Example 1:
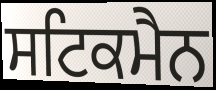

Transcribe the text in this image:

ਸਟਿਕਮੈਨ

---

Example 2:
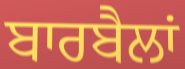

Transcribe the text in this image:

ਬਾਰਬੈਲਾਂ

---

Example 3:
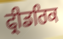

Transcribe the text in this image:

ਫ੍ਰੀਡਰਿਕ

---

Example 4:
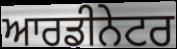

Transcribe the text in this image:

ਆਰਡੀਨੇਟਰ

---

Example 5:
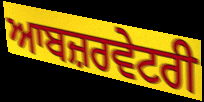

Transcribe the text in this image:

ਆਬਜ਼ਰਵੇਟਰੀ